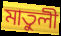
মাতুলী